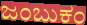
ಜಂಬುಕಂ